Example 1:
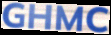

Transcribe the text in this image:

GHMC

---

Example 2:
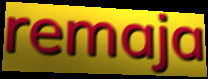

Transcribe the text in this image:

remaja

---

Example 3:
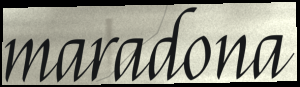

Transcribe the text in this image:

maradona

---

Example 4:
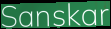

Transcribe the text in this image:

Sanskar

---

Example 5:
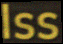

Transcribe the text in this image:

Iss